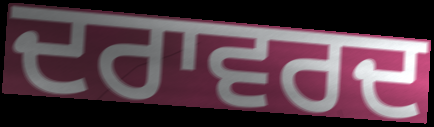
ਦਰਾਵਰਦ